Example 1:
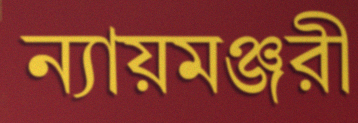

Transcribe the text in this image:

ন্যায়মঞ্জরী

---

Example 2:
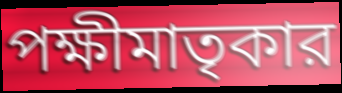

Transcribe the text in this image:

পক্ষীমাতৃকার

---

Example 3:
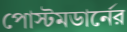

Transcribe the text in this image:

পোস্টমডার্নের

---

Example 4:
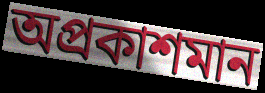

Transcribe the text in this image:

অপ্রকাশমান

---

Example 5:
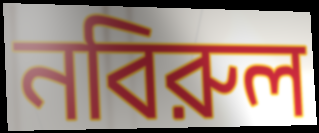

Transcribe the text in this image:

নবিরুল